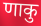
णाकु